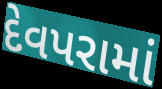
દેવપરામાં